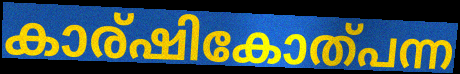
കാര്ഷികോത്പന്ന